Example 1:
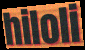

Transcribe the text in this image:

hiloli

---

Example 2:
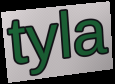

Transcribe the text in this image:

tyla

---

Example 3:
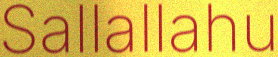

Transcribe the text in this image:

Sallallahu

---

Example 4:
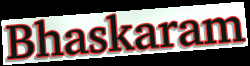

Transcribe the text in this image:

Bhaskaram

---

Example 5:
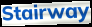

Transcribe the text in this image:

Stairway